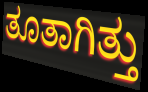
ತೂತಾಗಿತ್ತು